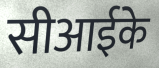
सीआईके